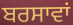
ਬਰਸਾਵਾਂ